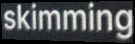
skimming